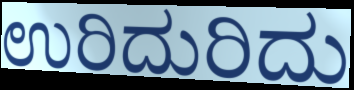
ಉರಿದುರಿದು